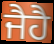
ਜੈਹੈ